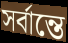
সর্বান্তে